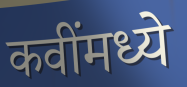
कवींमध्ये